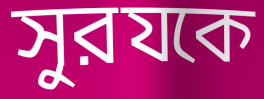
সুরযকে